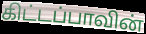
கிட்டப்பாவின்